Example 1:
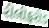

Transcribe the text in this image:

રીલીફરોડ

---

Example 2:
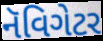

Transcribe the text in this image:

નૅવિગેટર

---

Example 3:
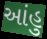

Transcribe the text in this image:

આંહુ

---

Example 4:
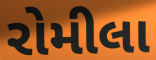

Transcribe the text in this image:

રોમીલા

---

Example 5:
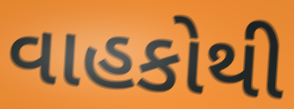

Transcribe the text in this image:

વાહકોથી